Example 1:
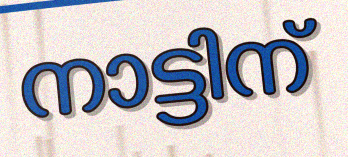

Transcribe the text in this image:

നാട്ടിന്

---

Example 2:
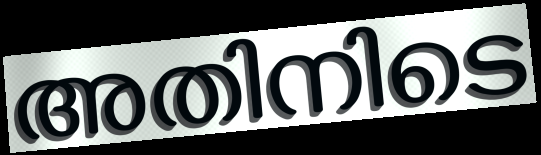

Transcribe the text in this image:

അതിനിടെ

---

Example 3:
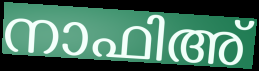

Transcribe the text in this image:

നാഫിഅ്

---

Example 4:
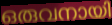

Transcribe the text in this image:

ഒരുവനായി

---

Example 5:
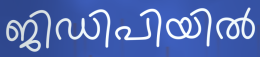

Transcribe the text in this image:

ജിഡിപിയിൽ